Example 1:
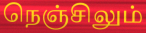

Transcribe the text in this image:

நெஞ்சிலும்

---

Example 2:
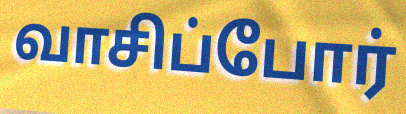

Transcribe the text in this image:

வாசிப்போர்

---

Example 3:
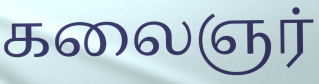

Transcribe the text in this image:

கலைஞர்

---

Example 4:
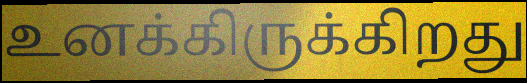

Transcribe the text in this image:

உனக்கிருக்கிறது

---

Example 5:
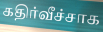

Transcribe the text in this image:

கதிர்வீச்சாக